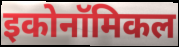
इकोनॉमिकल